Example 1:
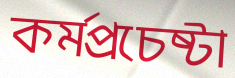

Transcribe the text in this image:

কর্মপ্রচেষ্টা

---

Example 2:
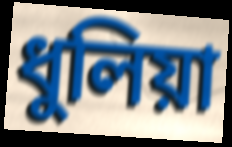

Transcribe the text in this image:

ধুলিয়া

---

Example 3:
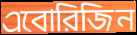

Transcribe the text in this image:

এবোরিজিন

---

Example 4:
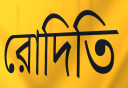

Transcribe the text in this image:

রোদিতি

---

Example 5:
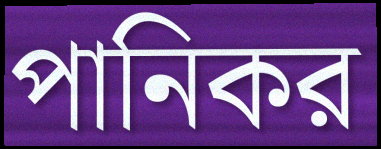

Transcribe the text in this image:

পানিকর